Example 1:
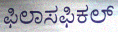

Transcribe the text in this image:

ಫಿಲಾಸಫಿಕಲ್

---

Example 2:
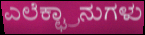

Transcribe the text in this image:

ಎಲೆಕ್ಟ್ರಾನುಗಳು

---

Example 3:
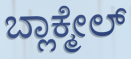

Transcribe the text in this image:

ಬ್ಲಾಕ್ಮೇಲ್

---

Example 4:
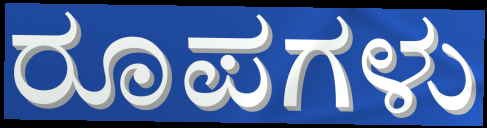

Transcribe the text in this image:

ರೂಪಗಳು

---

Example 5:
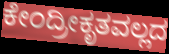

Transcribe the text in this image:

ಕೇಂದ್ರೀಕೃತವಲ್ಲದ